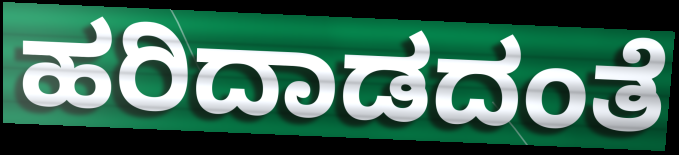
ಹರಿದಾಡದಂತೆ